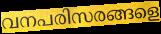
വനപരിസരങ്ങളെ